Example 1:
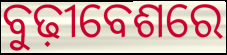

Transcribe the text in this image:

ବୁଢ଼ୀବେଶରେ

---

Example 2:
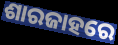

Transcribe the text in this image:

ଶାରଜାହରେ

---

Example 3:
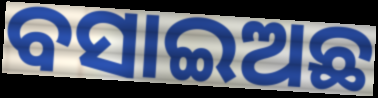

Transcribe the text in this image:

ବସାଇଅଛ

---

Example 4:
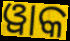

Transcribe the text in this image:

ୱାକ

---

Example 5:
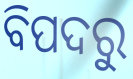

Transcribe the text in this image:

ବିପଦରୁ